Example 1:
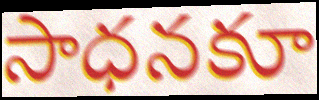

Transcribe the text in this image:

సాధనకూ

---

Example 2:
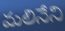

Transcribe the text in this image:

మలినేని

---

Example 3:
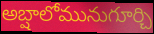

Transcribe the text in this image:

అబ్షాలోమునుగూర్చి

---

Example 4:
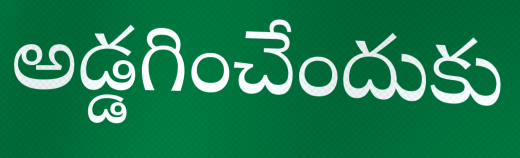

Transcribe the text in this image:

అడ్డగించేందుకు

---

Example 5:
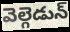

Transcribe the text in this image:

వెల్గెడున్